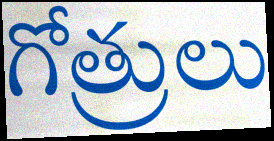
గోత్రులు